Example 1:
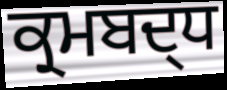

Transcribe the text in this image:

ਕ੍ਰਮਬਦ੍ਧ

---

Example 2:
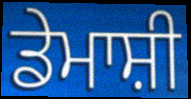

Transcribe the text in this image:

ਡੇਮਾਸ਼ੀ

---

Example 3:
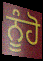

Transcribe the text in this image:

ਨੂੰਹੋ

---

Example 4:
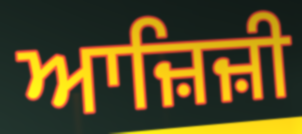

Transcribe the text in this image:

ਆਜ਼ਿਜ਼ੀ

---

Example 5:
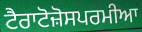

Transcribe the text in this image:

ਟੈਰਾਟੋਜ਼ੋਸਪਰਮੀਆ